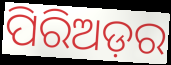
ପିରିଅଡ଼ର